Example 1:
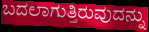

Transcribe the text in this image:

ಬದಲಾಗುತ್ತಿರುವುದನ್ನು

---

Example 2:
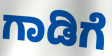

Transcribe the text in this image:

ಗಾಡಿಗೆ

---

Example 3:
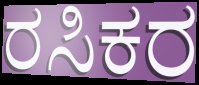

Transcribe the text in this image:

ರಸಿಕರ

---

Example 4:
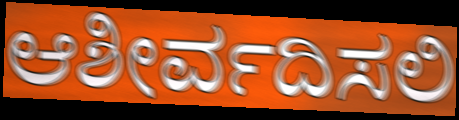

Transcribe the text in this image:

ಆಶೀರ್ವದಿಸಲಿ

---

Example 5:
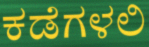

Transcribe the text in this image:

ಕಡೆಗಳಲಿ